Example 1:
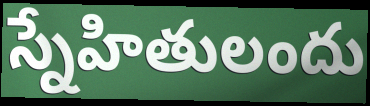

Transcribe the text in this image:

స్నేహితులందు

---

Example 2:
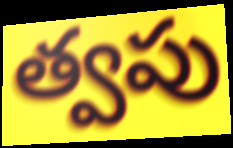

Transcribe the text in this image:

త్వపు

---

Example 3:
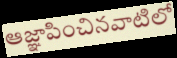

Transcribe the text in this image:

ఆజ్ఞాపించినవాటిలో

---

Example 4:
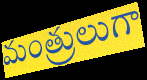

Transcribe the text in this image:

మంత్రులుగా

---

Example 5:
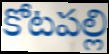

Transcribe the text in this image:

కోటపల్లి